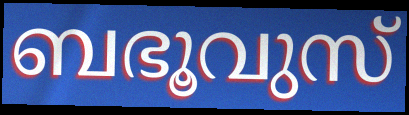
ബഭൂവുസ്